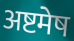
अष्टमेष